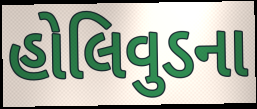
હોલિવુડના